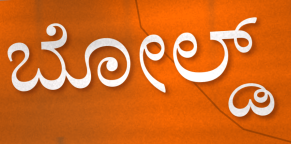
ಬೋಲ್ಡ್